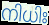
നിധിഃ